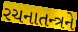
રચનાતન્ત્રને